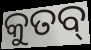
କୁତବ୍